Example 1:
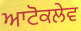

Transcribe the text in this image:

ਆਟੋਕਲੇਵ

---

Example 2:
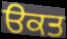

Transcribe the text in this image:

ੳਕਤ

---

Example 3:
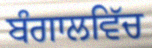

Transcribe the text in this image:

ਬੰਗਾਲਵਿੱਚ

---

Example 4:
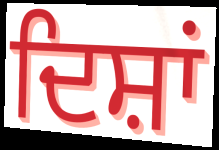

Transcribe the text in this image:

ਦਿਸ਼ਾਂ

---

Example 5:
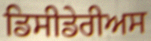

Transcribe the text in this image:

ਡਿਸੀਡੇਰੀਅਸ